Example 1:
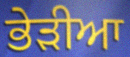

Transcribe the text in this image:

ਭੇੜੀਆ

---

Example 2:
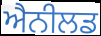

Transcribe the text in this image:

ਐਨੀਲਡ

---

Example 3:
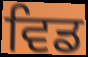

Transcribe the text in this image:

ਵਿਡ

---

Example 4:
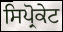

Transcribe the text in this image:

ਸਿਪ੍ਰੋਕੇਟ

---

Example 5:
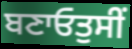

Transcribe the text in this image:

ਬਣਾਓਤੁਸੀਂ